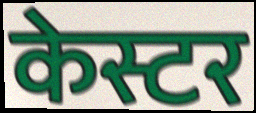
केस्टर